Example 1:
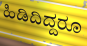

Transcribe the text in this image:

ಹಿಡಿದಿದ್ದರೂ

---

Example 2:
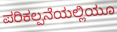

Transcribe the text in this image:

ಪರಿಕಲ್ಪನೆಯಲ್ಲಿಯೂ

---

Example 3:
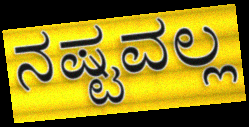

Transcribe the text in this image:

ನಷ್ಟವಲ್ಲ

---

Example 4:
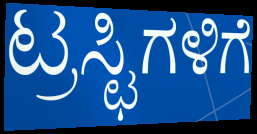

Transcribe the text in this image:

ಟ್ರಸ್ಟಿಗಳಿಗೆ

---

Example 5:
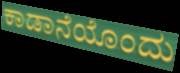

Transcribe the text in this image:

ಕಾಡಾನೆಯೊಂದು